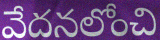
వేదనలోంచి